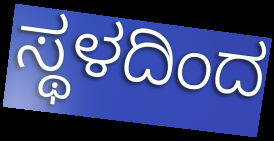
ಸ್ಥಳದಿಂದ